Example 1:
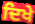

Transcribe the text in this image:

ਦਿਖੇ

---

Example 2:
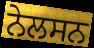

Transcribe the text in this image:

ਨੇਲਸਨ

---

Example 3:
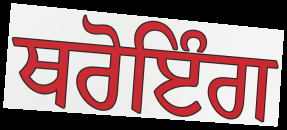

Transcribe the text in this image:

ਥਰੋਇੰਗ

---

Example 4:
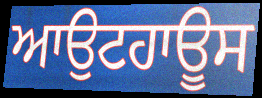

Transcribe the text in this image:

ਆਉਟਹਾਊਸ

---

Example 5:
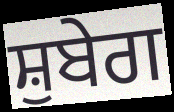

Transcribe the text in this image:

ਸ਼ੁਬੇਗ